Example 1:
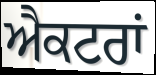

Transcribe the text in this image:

ਐਕਟਰਾਂ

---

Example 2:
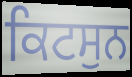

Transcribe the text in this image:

ਕਿਟਸੁਨ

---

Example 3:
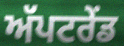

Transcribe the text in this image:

ਅੱਪਟਰੇਂਡ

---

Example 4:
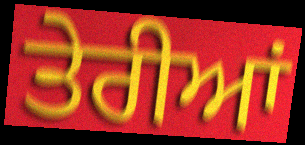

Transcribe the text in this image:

ਤੇਰੀਆਂ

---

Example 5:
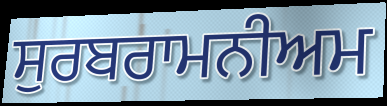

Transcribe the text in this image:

ਸੁਰਬਰਾਮਨੀਅਮ